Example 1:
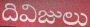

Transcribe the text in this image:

దివిజులు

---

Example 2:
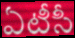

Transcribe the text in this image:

ఏటీసీ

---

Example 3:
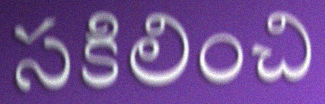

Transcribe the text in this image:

సకిలించి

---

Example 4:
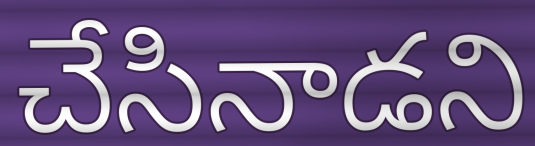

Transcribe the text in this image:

చేసినాడని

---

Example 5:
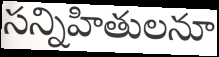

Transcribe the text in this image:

సన్నిహితులనూ